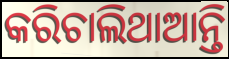
କରିଚାଲିଥାଆନ୍ତି